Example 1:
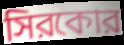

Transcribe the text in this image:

সিরকোর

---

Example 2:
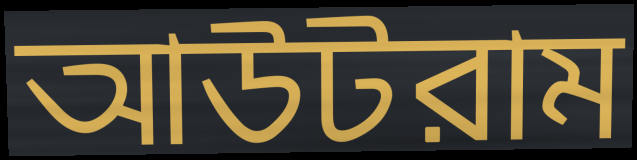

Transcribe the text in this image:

আউটরাম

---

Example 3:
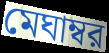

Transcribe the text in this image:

মেঘাম্বর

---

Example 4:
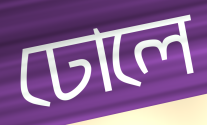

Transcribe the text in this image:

ঢোলে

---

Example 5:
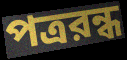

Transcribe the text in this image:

পত্ররন্ধ